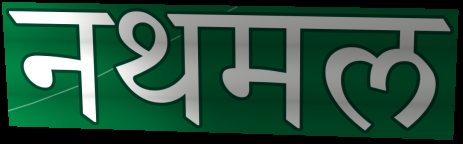
नथमल